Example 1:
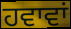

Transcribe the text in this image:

ਹਵਾਵਾਂ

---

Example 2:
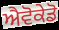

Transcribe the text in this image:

ਐਵੋਕੇਡੋ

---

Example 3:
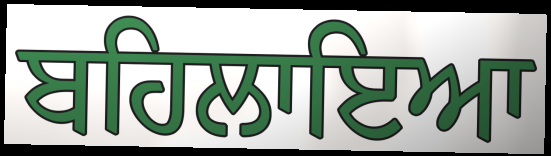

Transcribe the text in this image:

ਬਹਿਲਾਇਆ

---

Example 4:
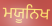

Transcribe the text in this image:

ਮਯੂਨਿਖ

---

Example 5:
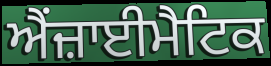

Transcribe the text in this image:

ਐਂਜ਼ਾਈਮੈਟਿਕ